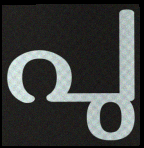
പു